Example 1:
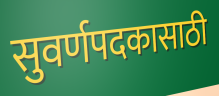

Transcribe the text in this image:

सुवर्णपदकासाठी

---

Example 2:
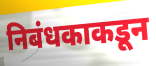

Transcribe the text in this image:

निबंधकाकडून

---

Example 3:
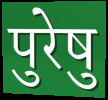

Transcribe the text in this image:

पुरेषु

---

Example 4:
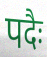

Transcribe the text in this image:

पदैः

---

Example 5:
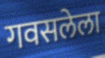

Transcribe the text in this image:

गवसलेला